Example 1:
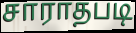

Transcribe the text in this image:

சாராதபடி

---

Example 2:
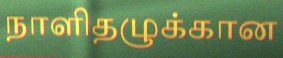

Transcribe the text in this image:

நாளிதழுக்கான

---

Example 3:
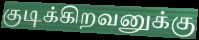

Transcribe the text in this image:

குடிக்கிறவனுக்கு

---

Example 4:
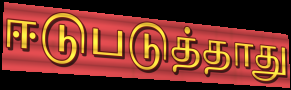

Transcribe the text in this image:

ஈடுபடுத்தாது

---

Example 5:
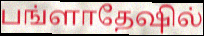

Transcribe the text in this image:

பங்ளாதேஷில்